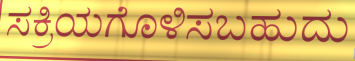
ಸಕ್ರಿಯಗೊಳಿಸಬಹುದು